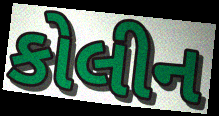
કોલીન